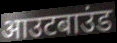
आउटबाउंड